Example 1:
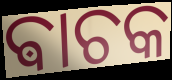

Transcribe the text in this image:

ଵାଚକ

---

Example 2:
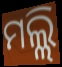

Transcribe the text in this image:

ମଲ୍ଲି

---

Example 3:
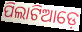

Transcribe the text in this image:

ପିଲାଟିଆଡ଼େ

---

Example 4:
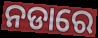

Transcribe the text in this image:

ନଡାରେ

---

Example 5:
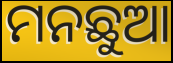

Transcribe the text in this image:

ମନଛୁଆ